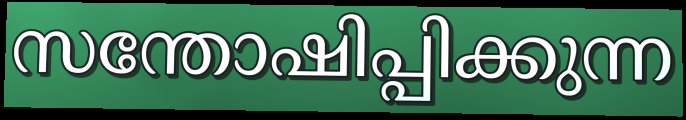
സന്തോഷിപ്പിക്കുന്ന